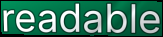
readable